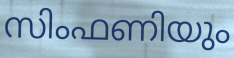
സിംഫണിയും